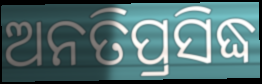
ଅନତିପ୍ରସିଦ୍ଧ